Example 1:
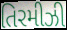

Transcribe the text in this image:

તિરમીઝી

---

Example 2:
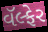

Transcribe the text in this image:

વૅલ્ફેર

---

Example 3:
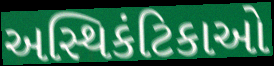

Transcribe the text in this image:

અસ્થિકંટિકાઓ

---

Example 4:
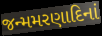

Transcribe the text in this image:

જન્મમરણાદિનાં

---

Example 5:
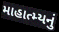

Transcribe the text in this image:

માહાત્મ્યનું